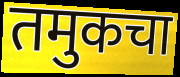
तमुकचा